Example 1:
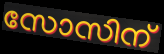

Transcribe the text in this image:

സോസിന്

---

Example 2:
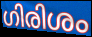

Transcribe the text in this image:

ഗിരിശം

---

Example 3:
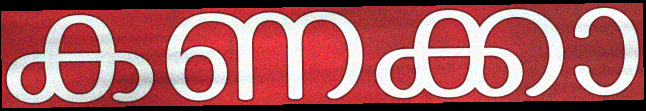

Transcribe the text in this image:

കണക്കാ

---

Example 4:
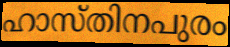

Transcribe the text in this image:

ഹാസ്തിനപുരം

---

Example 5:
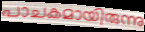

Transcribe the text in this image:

പാചകമായിരുന്നു